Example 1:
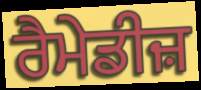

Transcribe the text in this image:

ਰੈਮੇਡੀਜ਼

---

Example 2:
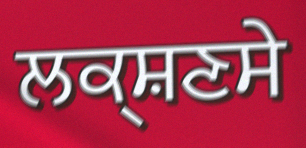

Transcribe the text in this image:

ਲਕ੍ਸ਼ਣਸੇ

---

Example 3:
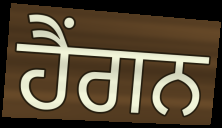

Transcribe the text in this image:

ਹੈਂਗਨ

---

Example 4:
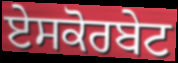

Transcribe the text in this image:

ਏਸਕੋਰਬੇਟ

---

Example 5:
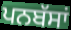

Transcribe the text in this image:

ਪਨਬੱਸਾਂ